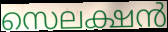
സെലക്ഷൻ